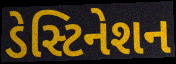
ડેસ્ટિનેશન